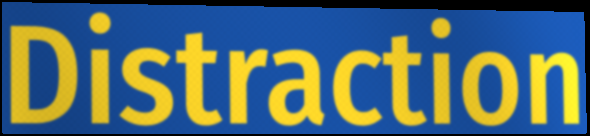
Distraction